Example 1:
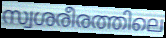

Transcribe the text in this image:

സ്വശരീരത്തിലെ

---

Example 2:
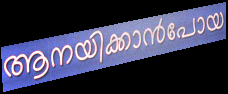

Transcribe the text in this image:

ആനയിക്കാൻപോയ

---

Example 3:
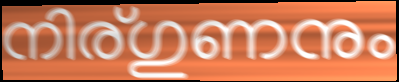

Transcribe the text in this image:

നിര്ഗുണനും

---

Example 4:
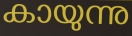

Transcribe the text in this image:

കായുന്നു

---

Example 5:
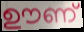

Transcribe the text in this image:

ഊണ്